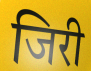
जिरी